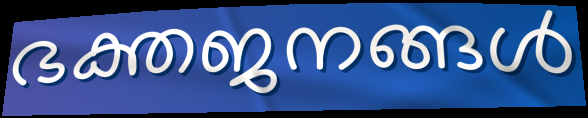
ഭക്തജനങ്ങൾ